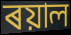
ৰয়াল